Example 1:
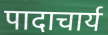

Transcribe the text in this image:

पादाचार्य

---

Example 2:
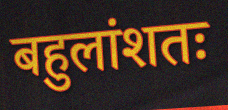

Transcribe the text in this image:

बहुलांशतः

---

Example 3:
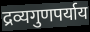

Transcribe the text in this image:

द्रव्यगुणपर्याय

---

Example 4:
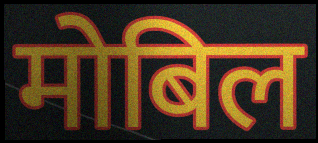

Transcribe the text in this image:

मोबिल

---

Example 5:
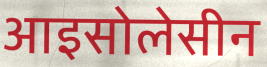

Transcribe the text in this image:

आइसोलेसीन